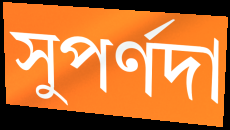
সুপর্ণদা